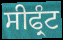
ਸੀਫ੍ਰੰਟ